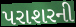
પરાશરની